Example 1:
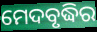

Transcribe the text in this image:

ମେଦବୃଦ୍ଧିର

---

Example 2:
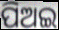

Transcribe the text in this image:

ପିଅଇ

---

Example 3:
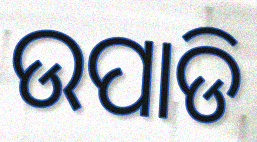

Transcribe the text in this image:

ଉପାଡି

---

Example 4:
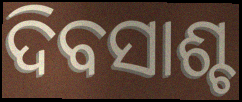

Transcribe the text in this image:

ଦିବସାଶ୍ଚ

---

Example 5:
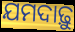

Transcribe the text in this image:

ଯମଦାଢ଼ୁ